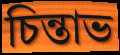
চিন্তাভ